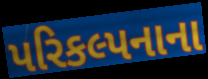
પરિકલ્પનાના